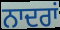
ਨਾਦਰਾਂ